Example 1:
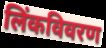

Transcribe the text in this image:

लिंकविवरण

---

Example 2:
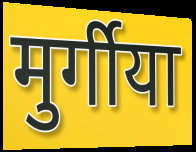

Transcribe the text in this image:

मुर्गीया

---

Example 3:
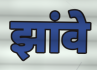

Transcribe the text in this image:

झांवे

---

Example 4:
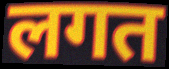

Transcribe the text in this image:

लगत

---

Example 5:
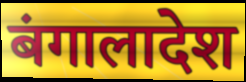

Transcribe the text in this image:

बंगालादेश